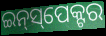
ଇନ୍‍ସ୍‌ପେକ୍ଟର